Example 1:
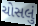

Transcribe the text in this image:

ચોસલું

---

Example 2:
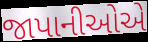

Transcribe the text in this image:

જાપાનીઓએ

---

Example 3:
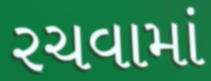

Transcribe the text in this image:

રચવામાં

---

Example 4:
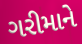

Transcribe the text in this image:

ગરીમાને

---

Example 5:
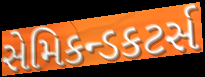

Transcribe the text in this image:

સેમિકન્ડકટર્સ